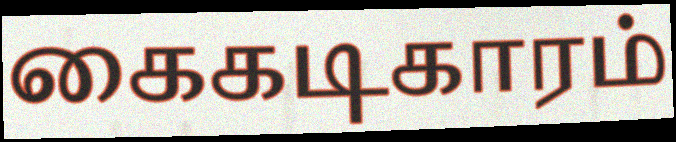
கைகடிகாரம்